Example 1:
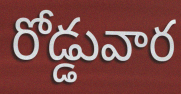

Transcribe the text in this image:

రోడ్డువార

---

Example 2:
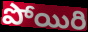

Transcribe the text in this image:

పోయిరి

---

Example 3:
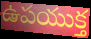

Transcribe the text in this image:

ఉపయుక్త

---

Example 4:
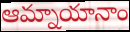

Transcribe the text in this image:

ఆమ్నాయానాం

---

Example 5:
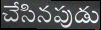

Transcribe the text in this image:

చేసినపుడు